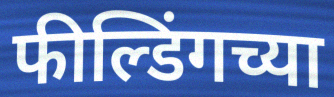
फील्डिंगच्या